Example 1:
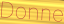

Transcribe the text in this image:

Donne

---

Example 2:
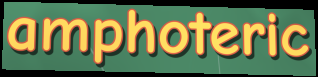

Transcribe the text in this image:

amphoteric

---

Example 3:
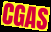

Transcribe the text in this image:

CGAS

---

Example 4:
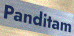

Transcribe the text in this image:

Panditam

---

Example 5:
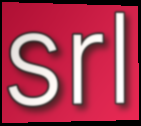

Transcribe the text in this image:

srl